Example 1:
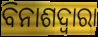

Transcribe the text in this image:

ବିନାଶଦ୍ଵାରା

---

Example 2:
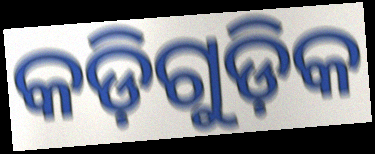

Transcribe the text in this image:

କଡ଼ିଗୁଡ଼ିକ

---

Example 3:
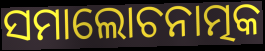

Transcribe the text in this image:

ସମାଲୋଚନାତ୍ମକ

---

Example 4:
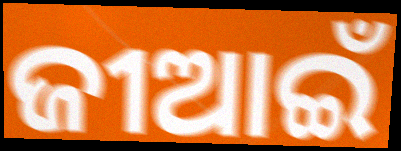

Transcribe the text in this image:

ଜୀଆଇଁ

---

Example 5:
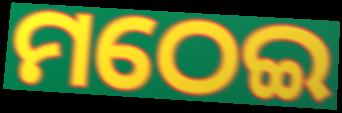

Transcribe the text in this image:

ମଠେଇ